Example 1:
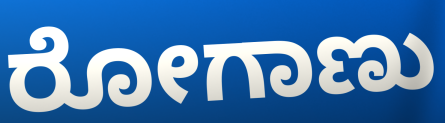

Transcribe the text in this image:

ರೋಗಾಣು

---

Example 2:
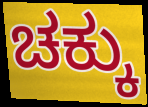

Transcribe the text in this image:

ಚಕ್ಕು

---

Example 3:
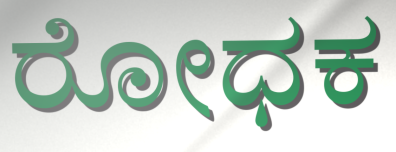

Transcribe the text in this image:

ರೋಧಕ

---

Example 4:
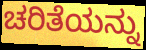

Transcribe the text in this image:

ಚರಿತೆಯನ್ನು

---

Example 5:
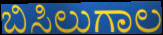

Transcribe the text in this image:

ಬಿಸಿಲುಗಾಲ